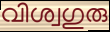
വിശ്വഗുരു